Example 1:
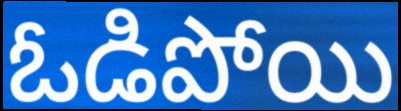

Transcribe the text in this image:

ఓడిపోయి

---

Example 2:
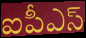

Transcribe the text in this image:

ఐపీఎస్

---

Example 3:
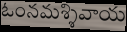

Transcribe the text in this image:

ఓంనమశ్శివాయ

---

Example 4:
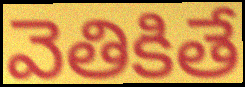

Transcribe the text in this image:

వెతికితే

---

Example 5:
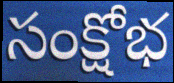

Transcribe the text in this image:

సంక్షోభ